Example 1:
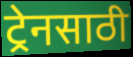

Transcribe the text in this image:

ट्रेनसाठी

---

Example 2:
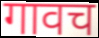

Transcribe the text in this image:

गावच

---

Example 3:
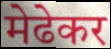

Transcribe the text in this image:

मेढेकर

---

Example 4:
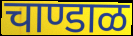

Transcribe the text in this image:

चाण्डाळ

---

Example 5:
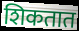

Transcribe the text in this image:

शिकतात